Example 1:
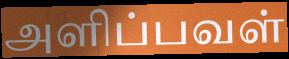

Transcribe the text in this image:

அளிப்பவள்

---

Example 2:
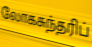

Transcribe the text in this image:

லோகசுந்தரிப்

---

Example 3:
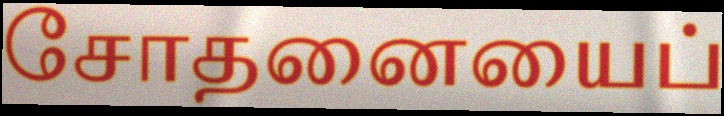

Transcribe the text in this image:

சோதனையைப்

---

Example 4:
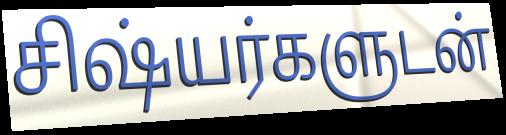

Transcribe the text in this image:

சிஷ்யர்களுடன்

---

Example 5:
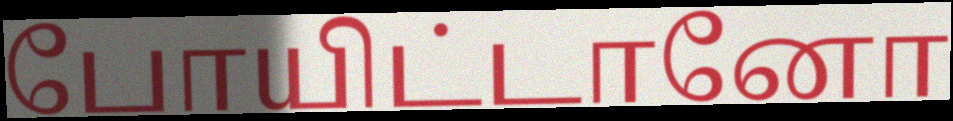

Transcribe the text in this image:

போயிட்டானோ